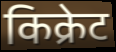
किक्रेट